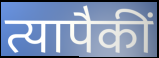
त्यापैकीं